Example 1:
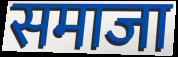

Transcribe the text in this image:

समाजा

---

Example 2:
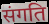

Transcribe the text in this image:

संगति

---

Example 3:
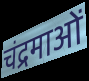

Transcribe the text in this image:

चंद्रमाओं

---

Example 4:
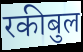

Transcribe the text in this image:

रकीबुल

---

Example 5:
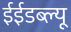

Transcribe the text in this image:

ईईडब्ल्यू